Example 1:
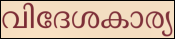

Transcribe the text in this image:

വിദേശകാര്യ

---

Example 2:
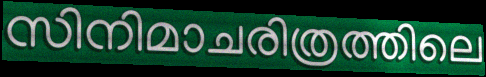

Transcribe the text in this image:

സിനിമാചരിത്രത്തിലെ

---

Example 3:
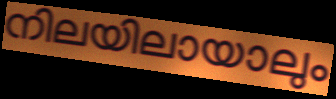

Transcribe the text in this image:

നിലയിലായാലും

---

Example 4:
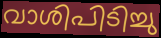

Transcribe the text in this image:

വാശിപിടിച്ചു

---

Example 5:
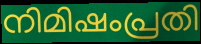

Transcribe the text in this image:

നിമിഷംപ്രതി